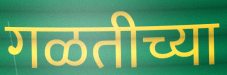
गळतीच्या